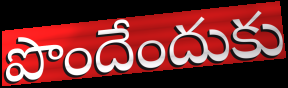
పొందేందుకు